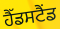
ਹੈੱਡਸਟੈਂਡ